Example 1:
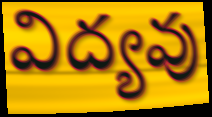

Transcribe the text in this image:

విద్యవు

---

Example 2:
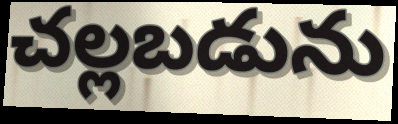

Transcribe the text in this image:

చల్లబడును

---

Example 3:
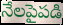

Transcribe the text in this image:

నేలపైపడి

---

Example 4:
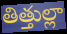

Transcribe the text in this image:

తిత్తుల్లా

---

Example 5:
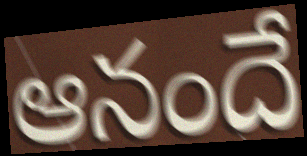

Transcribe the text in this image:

ఆనందే